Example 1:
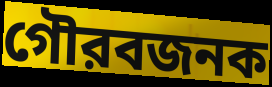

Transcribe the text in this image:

গৌরবজনক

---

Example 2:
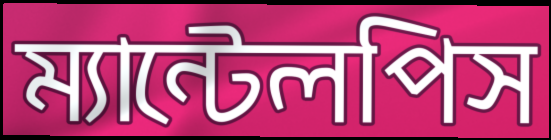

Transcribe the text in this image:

ম্যান্টেলপিস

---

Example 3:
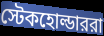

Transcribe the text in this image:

স্টেকহোল্ডাররা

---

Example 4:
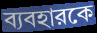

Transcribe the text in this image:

ব্যবহারকে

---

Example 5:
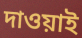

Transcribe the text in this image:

দাওয়াই